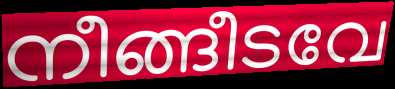
നീങ്ങീടവേ